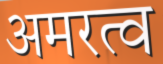
अमरत्व